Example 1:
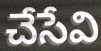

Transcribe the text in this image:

చేసేవి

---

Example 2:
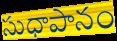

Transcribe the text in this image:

సుధాపానం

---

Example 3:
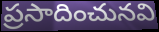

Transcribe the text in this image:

ప్రసాదించునవి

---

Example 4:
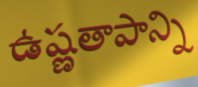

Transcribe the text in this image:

ఉష్ణతాపాన్ని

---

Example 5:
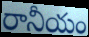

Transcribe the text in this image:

రానీయం